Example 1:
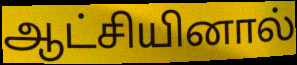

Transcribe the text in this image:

ஆட்சியினால்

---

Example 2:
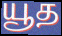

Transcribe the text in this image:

யூத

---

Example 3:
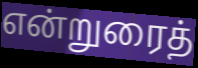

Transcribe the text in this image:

என்றுரைத்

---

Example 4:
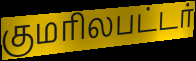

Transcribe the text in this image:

குமரிலபட்டர்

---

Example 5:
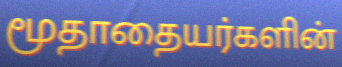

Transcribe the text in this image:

மூதாதையர்களின்